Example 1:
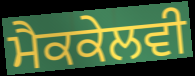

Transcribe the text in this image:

ਮੈਕਕੇਲਵੀ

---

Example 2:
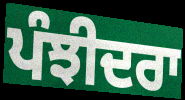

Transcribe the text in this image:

ਪੰਝੀਦਰਾ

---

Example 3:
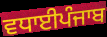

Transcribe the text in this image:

ਵਧਾਈਪੰਜਾਬ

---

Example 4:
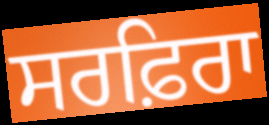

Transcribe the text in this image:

ਸਰਫ਼ਿਰਾ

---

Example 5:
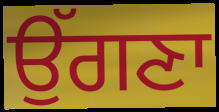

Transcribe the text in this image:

ਉੱਗਣਾ